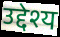
उद्देश्य